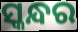
ସ୍କନ୍ଧର